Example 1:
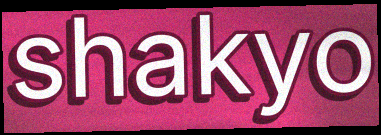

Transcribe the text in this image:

shakyo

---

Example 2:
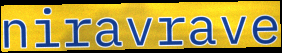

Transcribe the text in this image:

niravrave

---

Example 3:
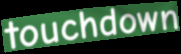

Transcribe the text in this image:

touchdown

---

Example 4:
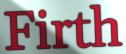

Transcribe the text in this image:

Firth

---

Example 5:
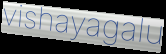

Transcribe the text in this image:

vishayagalu